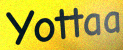
Yottaa